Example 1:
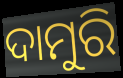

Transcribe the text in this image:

ଦାମୁରି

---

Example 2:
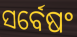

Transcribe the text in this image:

ସର୍ବେଷଂ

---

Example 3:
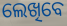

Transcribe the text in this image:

ଲେଖିବେ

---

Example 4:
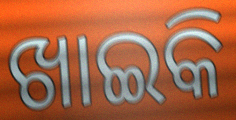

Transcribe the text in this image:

ଖାଇକି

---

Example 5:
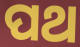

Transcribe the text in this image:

ପଥ